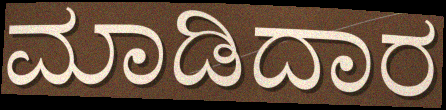
ಮಾಡಿದಾರ